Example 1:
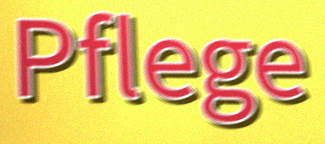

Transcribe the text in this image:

Pflege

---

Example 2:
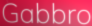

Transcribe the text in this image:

Gabbro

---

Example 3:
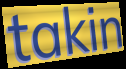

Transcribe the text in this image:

takin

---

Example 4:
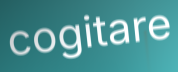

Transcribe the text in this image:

cogitare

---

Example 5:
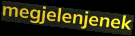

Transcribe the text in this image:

megjelenjenek